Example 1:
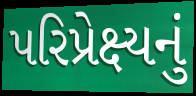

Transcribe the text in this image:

પરિપ્રેક્ષ્યનું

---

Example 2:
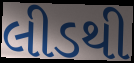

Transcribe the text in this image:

લીડથી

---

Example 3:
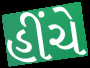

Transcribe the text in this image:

હીંચે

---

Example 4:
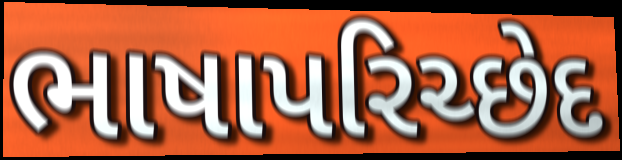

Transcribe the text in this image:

ભાષાપરિચ્છેદ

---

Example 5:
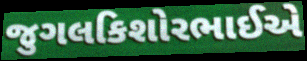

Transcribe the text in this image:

જુગલકિશોરભાઈએ